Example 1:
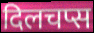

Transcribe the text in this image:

दिलचप्स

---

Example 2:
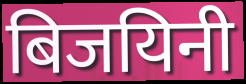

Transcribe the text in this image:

बिजयिनी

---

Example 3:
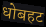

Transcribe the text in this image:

धोबहट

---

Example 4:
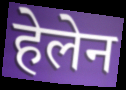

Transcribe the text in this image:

हेलेन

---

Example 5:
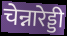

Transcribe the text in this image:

चेन्नारेड्डी